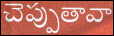
చెప్పుతావా